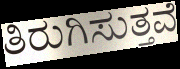
ತಿರುಗಿಸುತ್ತವೆ